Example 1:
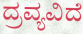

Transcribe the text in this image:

ದ್ರವ್ಯವಿದೆ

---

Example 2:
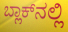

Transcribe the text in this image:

ಬ್ಲಾಕ್‌ನಲ್ಲಿ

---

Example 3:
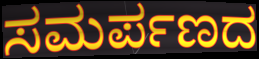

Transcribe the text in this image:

ಸಮರ್ಪಣದ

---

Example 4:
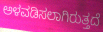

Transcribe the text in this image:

ಅಳವಡಿಸಲಾಗಿರುತ್ತದೆ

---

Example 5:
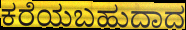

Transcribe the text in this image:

ಕರೆಯಬಹುದಾದ